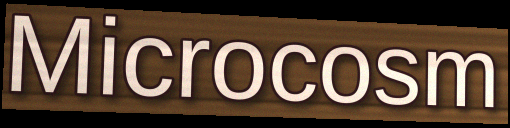
Microcosm